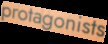
protagonists